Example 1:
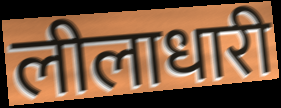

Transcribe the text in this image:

लीलाधारी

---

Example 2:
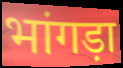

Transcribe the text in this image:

भांगड़ा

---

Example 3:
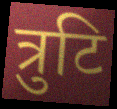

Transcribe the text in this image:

त्रुटि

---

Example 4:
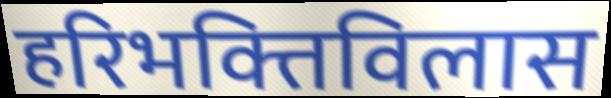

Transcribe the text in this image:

हरिभक्तिविलास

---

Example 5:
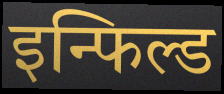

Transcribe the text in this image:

इन्फिल्ड